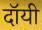
दॉयी